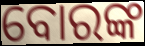
ବୋରଙ୍କ